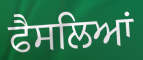
ਫੈਸਲਿਆਂ